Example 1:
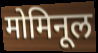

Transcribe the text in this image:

मोमिनूल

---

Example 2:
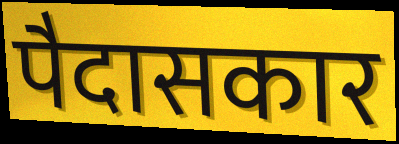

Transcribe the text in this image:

पैदासकार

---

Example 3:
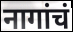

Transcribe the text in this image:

नागांचं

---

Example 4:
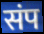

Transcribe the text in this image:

संप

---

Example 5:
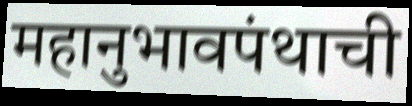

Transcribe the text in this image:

महानुभावपंथाची